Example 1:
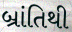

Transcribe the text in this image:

બ્રાંતિથી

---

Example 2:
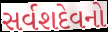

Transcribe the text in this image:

સર્વશદેવનો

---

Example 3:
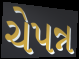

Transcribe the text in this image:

ચેપન્ન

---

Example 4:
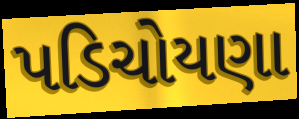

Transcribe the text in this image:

પડિચોયણા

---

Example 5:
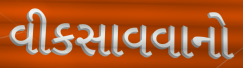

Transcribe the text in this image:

વીકસાવવાનો